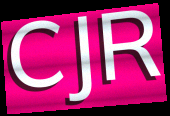
CJR